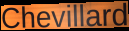
Chevillard